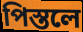
পিস্তলে